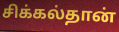
சிக்கல்தான்